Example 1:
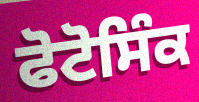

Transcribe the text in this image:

ਫੋਟੋਸਿੰਕ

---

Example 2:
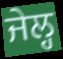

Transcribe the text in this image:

ਜੇਲ੍ਹ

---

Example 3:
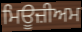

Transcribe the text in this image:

ਮਿਊਜ਼ੀਅਮ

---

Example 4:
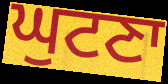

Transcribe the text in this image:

ਘੁਟਣਾ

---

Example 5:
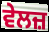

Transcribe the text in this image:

ਵੇਲਜ਼